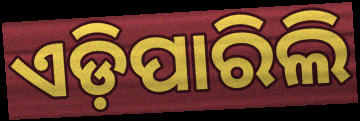
ଏଡ଼ିପାରିଲି